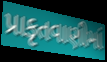
પ્રાકૃતવાણીમાં